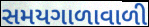
સમયગાળાવાળી